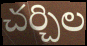
చర్చిల